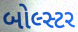
બોલ્સ્ટર